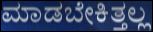
ಮಾಡಬೇಕಿತ್ತಲ್ಲ